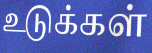
உடுக்கள்